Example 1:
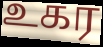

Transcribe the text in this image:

உகர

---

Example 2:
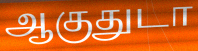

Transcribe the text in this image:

ஆகுதுடா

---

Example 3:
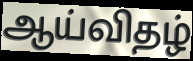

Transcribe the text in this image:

ஆய்விதழ்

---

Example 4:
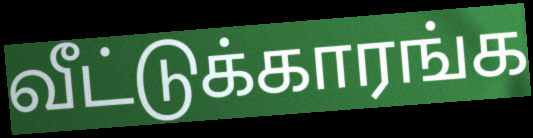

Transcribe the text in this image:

வீட்டுக்காரங்க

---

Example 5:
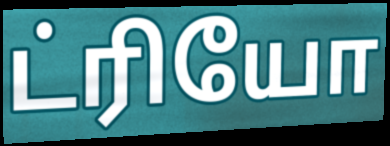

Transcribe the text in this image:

ட்ரியோ